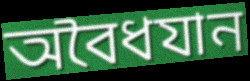
অবৈধযান